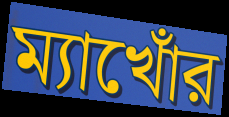
ম্যাখোঁর